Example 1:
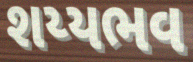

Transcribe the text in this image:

શય્યભવ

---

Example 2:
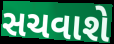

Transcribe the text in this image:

સચવાશે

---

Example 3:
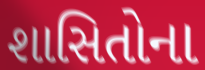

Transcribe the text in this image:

શાસિતોના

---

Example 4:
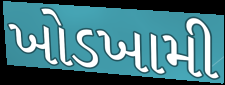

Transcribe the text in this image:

ખોડખામી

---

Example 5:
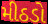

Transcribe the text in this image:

મીઠડો